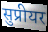
सुप्रीयर